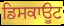
ਡਿਸਕਾਊਟ